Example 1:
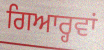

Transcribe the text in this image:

ਗਿਆਰ੍ਹਵਾਂ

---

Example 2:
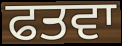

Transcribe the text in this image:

ਫਤਵਾ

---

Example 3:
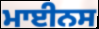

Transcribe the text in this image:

ਮਾਈਨਸ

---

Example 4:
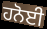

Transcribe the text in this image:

ਹਨੋਈ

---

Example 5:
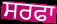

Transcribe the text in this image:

ਸਰਫਾ